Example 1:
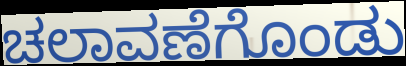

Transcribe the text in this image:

ಚಲಾವಣೆಗೊಂಡು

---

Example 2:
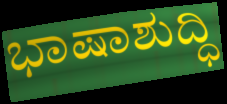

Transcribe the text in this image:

ಭಾಷಾಶುದ್ಧಿ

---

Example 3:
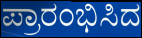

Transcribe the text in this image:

ಪ್ರಾರಂಭಿಸಿದ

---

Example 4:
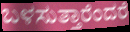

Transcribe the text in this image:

ಬಳಸುತ್ತಾರೆಂದರೆ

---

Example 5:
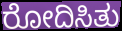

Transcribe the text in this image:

ರೋದಿಸಿತು